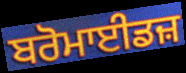
ਬਰੋਮਾਈਡਜ਼